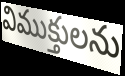
విముక్తులను